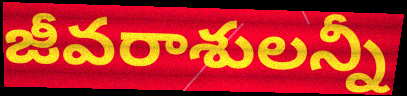
జీవరాశులన్నీ